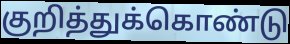
குறித்துக்கொண்டு